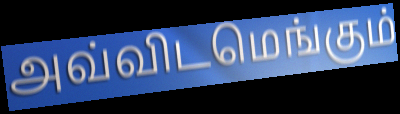
அவ்விடமெங்கும்